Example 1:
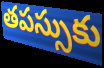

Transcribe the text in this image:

తపస్సుకు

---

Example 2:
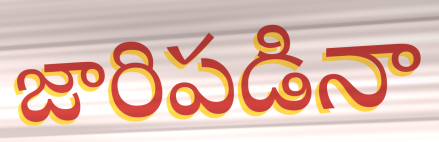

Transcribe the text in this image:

జారిపడినా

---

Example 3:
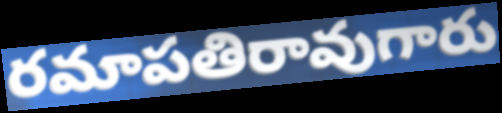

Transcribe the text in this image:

రమాపతిరావుగారు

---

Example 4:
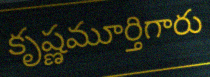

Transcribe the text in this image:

కృష్ణమూర్తిగారు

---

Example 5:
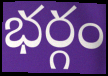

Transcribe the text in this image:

భర్గం